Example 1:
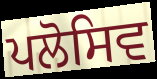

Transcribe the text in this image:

ਪਲੋਸਿਵ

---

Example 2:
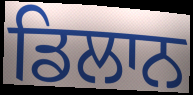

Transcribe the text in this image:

ਡਿਲਾਨ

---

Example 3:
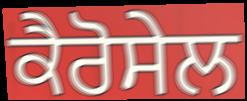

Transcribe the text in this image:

ਕੈਰੋਸੇਲ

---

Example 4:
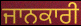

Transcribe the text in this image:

ਜਾਨਕਾਰੀ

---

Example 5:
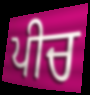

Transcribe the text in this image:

ਪੀਚ